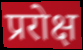
प्ररोक्ष